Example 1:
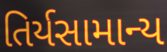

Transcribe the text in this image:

તિર્યસામાન્ય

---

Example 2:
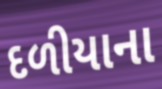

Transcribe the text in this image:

દળીયાના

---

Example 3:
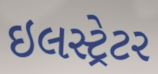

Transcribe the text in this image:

ઇલસ્ટ્રેટર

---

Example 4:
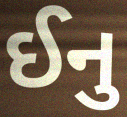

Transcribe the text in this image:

ઈનુ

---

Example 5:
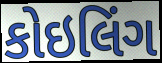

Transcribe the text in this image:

કોઇલિંગ